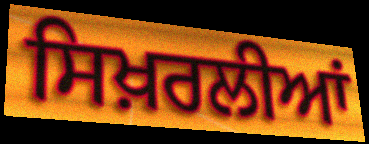
ਸਿਖ਼ਰਲੀਆਂ